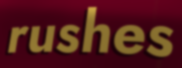
rushes